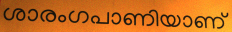
ശാരംഗപാണിയാണ്